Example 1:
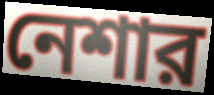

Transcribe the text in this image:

নেশার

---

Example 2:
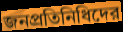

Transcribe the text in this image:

জনপ্রতিনিধিদের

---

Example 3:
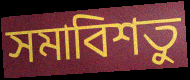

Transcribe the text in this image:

সমাবিশতু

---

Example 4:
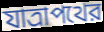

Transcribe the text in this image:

যাত্রাপথের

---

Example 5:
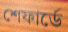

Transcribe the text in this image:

শেফার্ডে